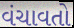
વંચાવતો